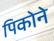
पिकोने